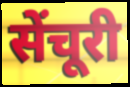
सेंचूरी